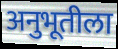
अनुभूतीला